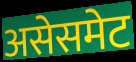
असेसमेट